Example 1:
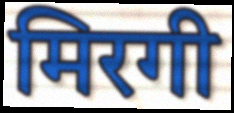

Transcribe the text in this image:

मिरगी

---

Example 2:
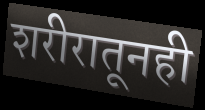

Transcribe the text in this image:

शरीरातूनही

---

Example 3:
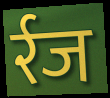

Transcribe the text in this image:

र्रज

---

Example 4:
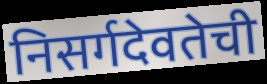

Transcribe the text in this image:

निसर्गदेवतेची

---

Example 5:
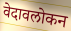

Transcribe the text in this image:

वेदावलोकन